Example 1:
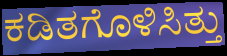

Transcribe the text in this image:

ಕಡಿತಗೊಳಿಸಿತ್ತು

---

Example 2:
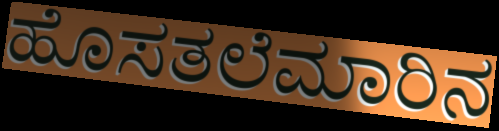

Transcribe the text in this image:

ಹೊಸತಲೆಮಾರಿನ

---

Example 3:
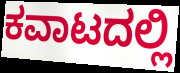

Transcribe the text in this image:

ಕವಾಟದಲ್ಲಿ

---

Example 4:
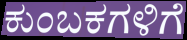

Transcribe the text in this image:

ಕುಂಬಕಗಳಿಗೆ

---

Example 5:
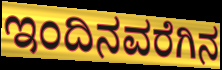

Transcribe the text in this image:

ಇಂದಿನವರೆಗಿನ